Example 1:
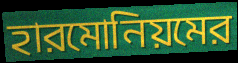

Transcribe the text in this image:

হারমোনিয়মের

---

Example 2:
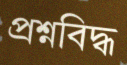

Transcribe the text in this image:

প্রশ্নবিদ্ধ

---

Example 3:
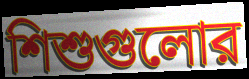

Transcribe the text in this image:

শিশুগুলোর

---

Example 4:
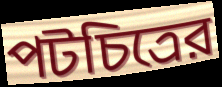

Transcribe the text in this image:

পটচিত্রের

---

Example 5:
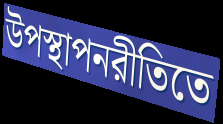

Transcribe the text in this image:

উপস্থাপনরীতিতে